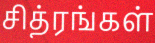
சித்ரங்கள்